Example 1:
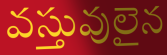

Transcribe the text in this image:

వస్తువులైన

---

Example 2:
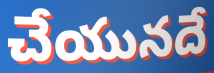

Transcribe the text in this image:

చేయునదే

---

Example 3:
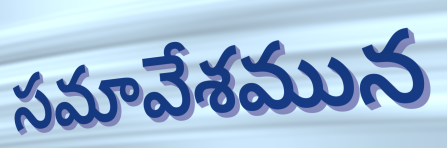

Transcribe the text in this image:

సమావేశమున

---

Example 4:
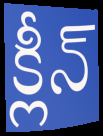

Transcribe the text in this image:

క్లీన్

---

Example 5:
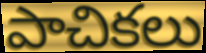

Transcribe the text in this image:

పాచికలు